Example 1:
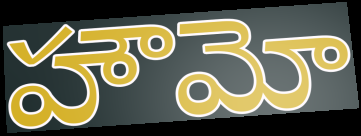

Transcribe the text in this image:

హౌమో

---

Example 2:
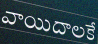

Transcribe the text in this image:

వాయిదాలకే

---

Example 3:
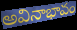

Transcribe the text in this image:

అవినాభావం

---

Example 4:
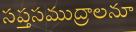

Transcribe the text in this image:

సప్తసముద్రాలనూ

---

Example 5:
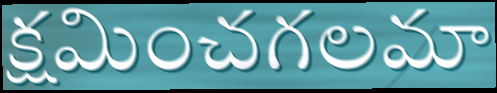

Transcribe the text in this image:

క్షమించగలమా